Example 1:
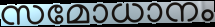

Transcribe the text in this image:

സമോധാനം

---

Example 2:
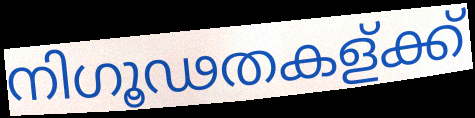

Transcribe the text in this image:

നിഗൂഢതകള്ക്ക്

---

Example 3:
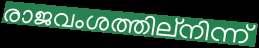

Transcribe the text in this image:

രാജവംശത്തില്നിന്ന്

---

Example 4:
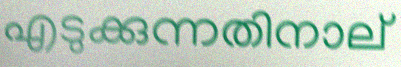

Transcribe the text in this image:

എടുക്കുന്നതിനാല്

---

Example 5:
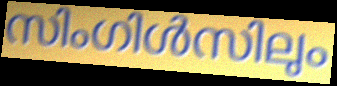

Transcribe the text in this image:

സിംഗിൾസിലും